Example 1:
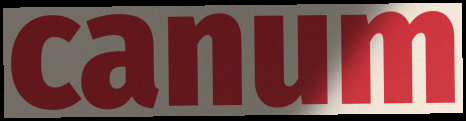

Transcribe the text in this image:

canum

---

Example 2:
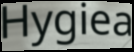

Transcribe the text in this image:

Hygiea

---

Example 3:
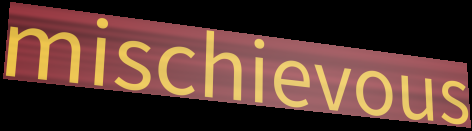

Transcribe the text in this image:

mischievous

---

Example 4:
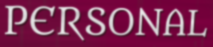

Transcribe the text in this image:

PERSONAL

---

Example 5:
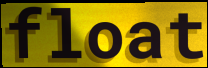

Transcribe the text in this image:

float